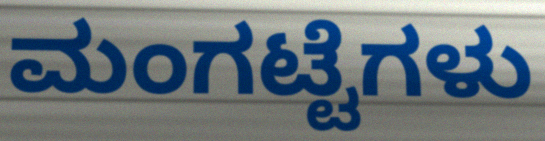
ಮಂಗಟ್ಟೆಗಳು